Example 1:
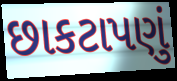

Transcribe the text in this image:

છાકટાપણું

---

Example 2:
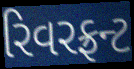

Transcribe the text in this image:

રિવરફ્રન્ટ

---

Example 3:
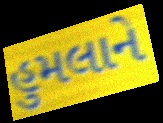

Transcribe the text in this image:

હુમલાને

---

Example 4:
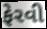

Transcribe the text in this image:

ફેરવી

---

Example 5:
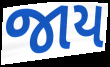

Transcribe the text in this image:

જાય